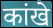
कांखे